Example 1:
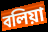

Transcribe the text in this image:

বলিয়া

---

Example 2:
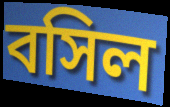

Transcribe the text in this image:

বসিল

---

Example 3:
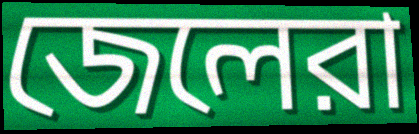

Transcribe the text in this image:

জেলেরা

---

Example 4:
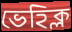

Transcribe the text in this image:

ভেহিক্ল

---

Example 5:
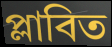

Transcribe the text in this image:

প্লাবিত